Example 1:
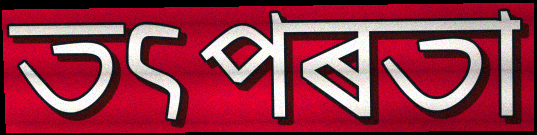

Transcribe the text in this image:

তৎপৰতা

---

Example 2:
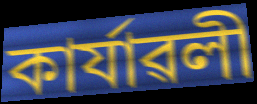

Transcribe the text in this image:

কাৰ্যাৱলী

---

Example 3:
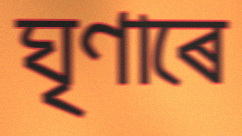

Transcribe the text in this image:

ঘৃণাৰে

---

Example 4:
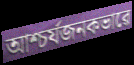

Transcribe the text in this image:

আশ্চৰ্যজনকভাৱে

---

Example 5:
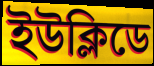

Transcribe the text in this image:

ইউক্লিডে